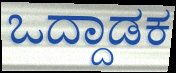
ಒದ್ದಾಡಕ